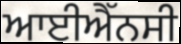
ਆਈਐੱਨਸੀ